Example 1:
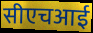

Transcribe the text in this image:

सीएचआई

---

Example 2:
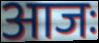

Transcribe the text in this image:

आजः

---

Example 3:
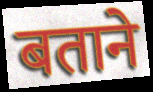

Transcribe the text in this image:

बताने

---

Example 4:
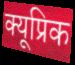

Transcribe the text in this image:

क्यूप्रिक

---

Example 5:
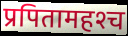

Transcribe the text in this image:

प्रपितामहश्च